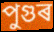
পুগুৰ